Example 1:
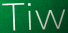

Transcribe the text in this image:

Tiw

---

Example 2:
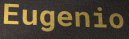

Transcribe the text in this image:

Eugenio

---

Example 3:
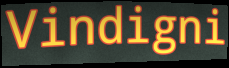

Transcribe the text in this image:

Vindigni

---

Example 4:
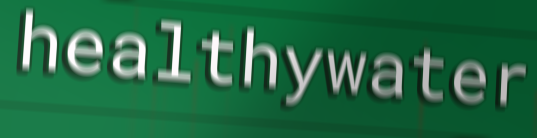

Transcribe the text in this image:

healthywater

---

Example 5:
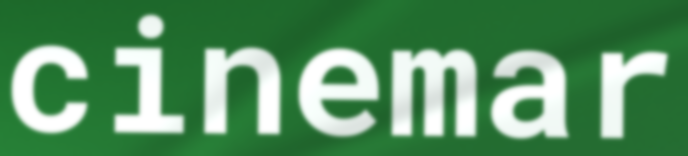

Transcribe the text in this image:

cinemar